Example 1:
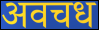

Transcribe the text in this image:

अवचध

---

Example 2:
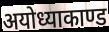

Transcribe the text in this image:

अयोध्याकाण्ड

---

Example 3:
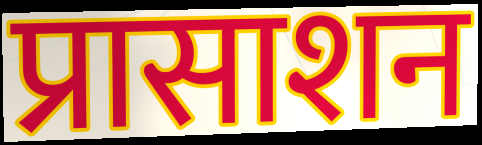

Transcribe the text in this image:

प्रासाशन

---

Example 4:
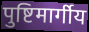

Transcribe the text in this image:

पुष्टिमार्गीय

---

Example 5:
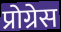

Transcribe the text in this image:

प्रोग्रेस